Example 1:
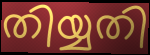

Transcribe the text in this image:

തിയ്യതി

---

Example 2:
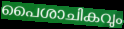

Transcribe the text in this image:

പൈശാചികവും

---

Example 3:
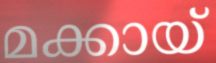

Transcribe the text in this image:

മക്കായ്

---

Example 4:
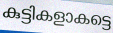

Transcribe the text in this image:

കുട്ടികളാകട്ടെ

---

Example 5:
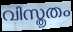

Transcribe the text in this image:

വിസ്തൃതം